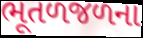
ભૂતળજળના